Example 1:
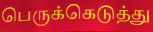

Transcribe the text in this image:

பெருக்கெடுத்து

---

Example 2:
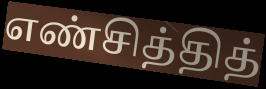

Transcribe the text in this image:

எண்சித்தித்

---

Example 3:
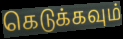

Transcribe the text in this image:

கெடுக்கவும்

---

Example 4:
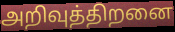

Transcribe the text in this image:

அறிவுத்திறனை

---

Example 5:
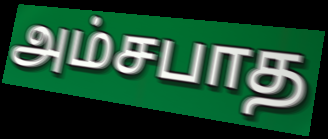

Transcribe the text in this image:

அம்சபாத